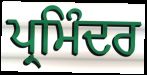
ਪ੍ਰਮਿੰਦਰ